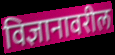
विज्ञानावरील